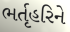
ભર્તૃહરિને